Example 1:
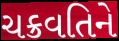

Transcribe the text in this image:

ચક્રવતિને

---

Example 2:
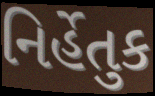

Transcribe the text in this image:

નિર્હેતુક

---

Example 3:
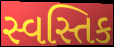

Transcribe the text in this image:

સ્વસ્તિક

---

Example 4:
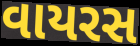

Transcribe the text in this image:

વાયરસ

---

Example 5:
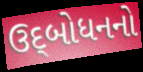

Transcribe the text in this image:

ઉદ્‌બોધનનો